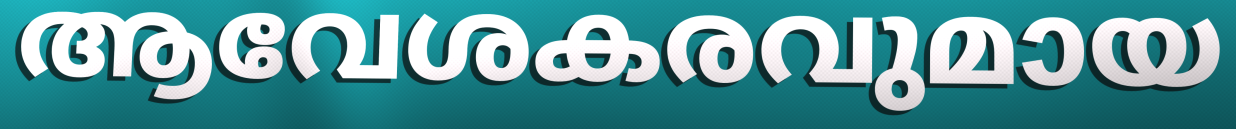
ആവേശകരവുമായ